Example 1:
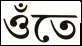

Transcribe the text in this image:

ওঁতে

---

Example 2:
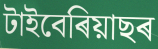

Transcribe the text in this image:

টাইবেৰিয়াছৰ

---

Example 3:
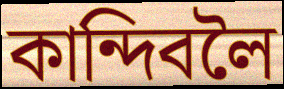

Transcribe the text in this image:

কান্দিবলৈ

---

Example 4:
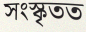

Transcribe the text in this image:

সংস্কৃতত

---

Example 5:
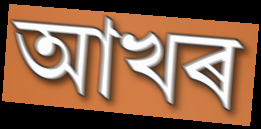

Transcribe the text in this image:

আখৰ